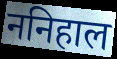
ननिहाल